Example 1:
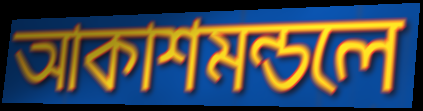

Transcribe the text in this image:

আকাশমন্ডলে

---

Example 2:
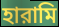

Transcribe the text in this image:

হারামি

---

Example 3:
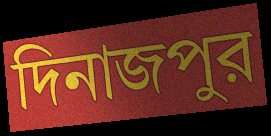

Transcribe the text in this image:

দিনাজপুর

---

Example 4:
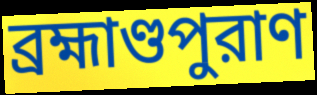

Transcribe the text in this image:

ব্রহ্মাণ্ডপুরাণ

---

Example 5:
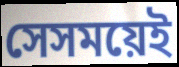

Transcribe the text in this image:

সেসময়েই